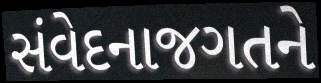
સંવેદનાજગતને